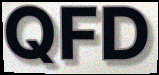
QFD